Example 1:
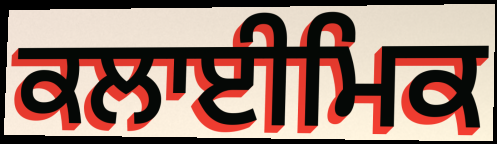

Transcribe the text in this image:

ਕਲਾਈਮਿਕ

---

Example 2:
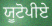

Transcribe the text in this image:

ਯੂਟੋਪੀਏ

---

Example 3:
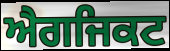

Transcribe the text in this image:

ਐਗਜਿਕਟ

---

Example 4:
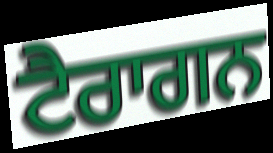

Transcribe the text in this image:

ਟੈਰਾਗਨ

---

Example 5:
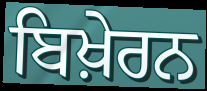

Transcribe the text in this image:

ਬਿਖ਼ੇਰਨ